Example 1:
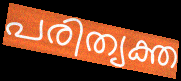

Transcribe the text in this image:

പരിത്യക്ത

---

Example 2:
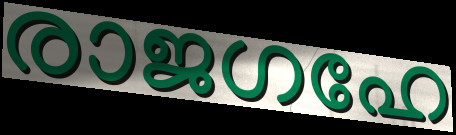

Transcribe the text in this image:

രാജഗഹേ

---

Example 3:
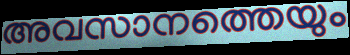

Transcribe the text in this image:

അവസാനത്തെയും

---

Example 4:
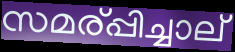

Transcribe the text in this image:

സമര്പ്പിച്ചാല്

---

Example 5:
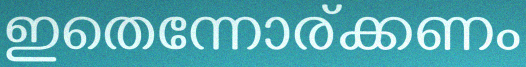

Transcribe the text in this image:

ഇതെന്നോര്ക്കണം